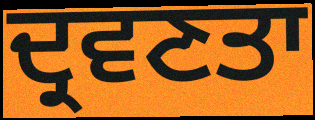
ਦ੍ਰਵਣਤਾ